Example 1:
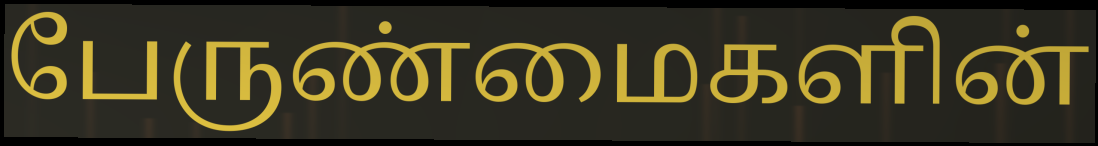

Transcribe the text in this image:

பேருண்மைகளின்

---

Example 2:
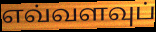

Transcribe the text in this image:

எவ்வளவுப்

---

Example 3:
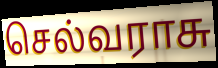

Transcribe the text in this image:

செல்வராசு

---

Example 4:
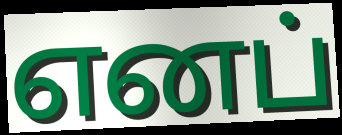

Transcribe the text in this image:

எனப்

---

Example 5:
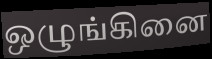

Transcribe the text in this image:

ஒழுங்கினை